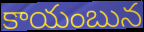
కాయంబున